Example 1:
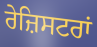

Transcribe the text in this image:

ਰੇਜ਼ਿਸਟਰਾਂ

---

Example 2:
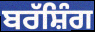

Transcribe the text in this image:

ਬਰੱਸ਼ਿੰਗ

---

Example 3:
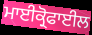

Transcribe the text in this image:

ਮਾਈਕ੍ਰੋਫਾਈਲ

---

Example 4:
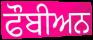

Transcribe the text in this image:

ਫੌਬੀਅਨ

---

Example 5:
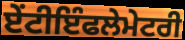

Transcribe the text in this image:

ਏੰਟੀਇੰਫਲੇਮੇਟਰੀ